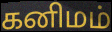
கனிமம்